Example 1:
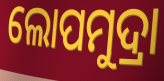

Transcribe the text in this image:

ଲୋପମୁଦ୍ରା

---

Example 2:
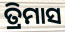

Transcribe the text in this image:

ତ୍ରିମାସ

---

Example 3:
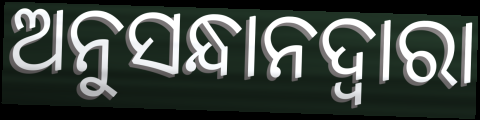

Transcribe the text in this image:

ଅନୁସନ୍ଧାନଦ୍ୱାରା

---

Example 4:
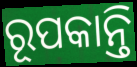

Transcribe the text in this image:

ରୂପକାନ୍ତି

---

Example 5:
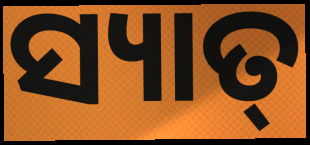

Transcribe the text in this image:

ସ୍ୟାତ୍